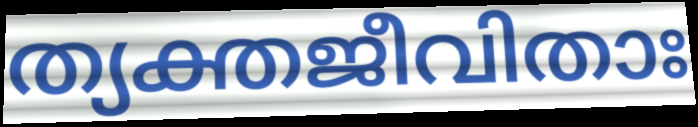
ത്യക്തജീവിതാഃ